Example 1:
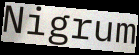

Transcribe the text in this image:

Nigrum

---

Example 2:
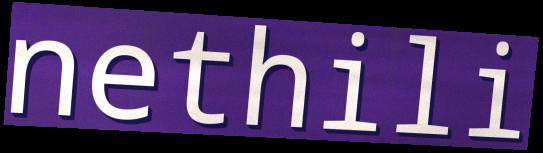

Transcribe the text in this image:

nethili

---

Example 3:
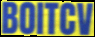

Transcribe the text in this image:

BOITCV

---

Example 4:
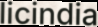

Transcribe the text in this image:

licindia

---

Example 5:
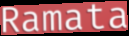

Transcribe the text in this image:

Ramata